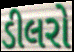
ડીલરો